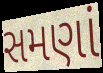
સમણાં